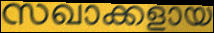
സഖാക്കളായ